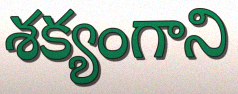
శక్యంగాని